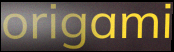
origami